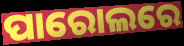
ପାରୋଲରେ